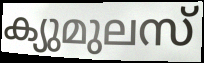
ക്യുമുലസ്